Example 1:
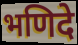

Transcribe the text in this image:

भणिदे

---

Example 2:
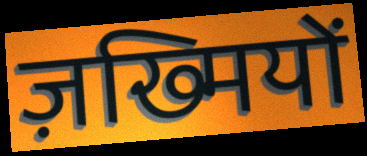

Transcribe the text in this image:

ज़ख्मियों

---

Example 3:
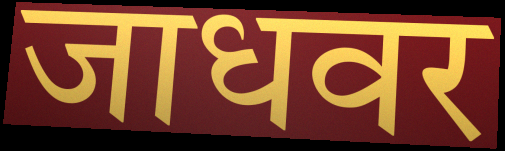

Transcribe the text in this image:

जाधवर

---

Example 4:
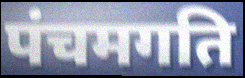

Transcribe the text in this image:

पंचमगति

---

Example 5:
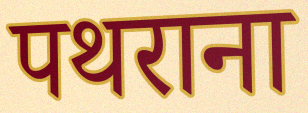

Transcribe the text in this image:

पथराना